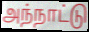
அந்நாட்டு